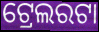
ଟ୍ରେଲରଟା